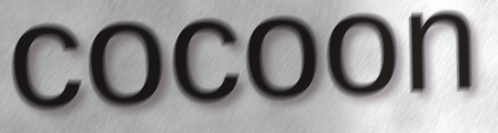
cocoon